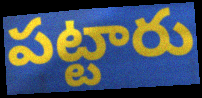
పట్టారు